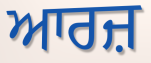
ਆਰਜ਼